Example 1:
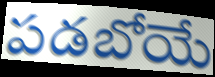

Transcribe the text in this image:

పడబోయే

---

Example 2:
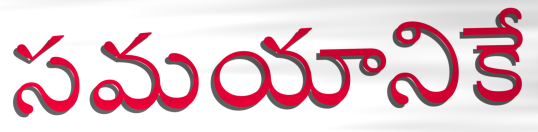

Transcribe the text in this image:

సమయానికే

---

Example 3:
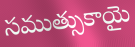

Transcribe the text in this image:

సముత్సుకాయై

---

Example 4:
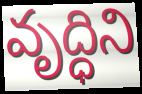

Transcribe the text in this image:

వృద్ధిని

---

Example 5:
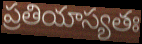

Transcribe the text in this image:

ప్రతియాస్యతః